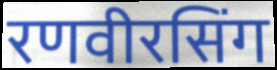
रणवीरसिंग